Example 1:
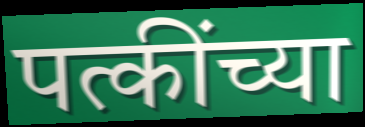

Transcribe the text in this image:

पत्कींच्या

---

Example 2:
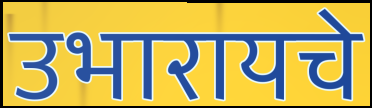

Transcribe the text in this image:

उभारायचे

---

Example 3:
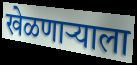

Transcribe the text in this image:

खेळणाऱ्याला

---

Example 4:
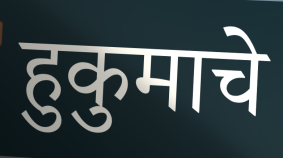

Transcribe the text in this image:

हुकुमाचे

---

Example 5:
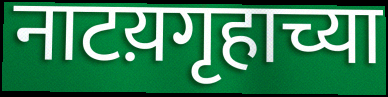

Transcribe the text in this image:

नाटय़गृहाच्या